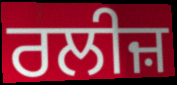
ਰਲੀਜ਼